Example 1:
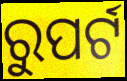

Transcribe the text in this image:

ରୁପର୍ଟ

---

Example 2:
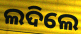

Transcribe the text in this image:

ଲଦିଲେ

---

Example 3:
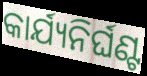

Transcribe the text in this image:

କାର୍ଯ୍ୟନିର୍ଘଣ୍ଟ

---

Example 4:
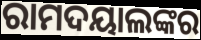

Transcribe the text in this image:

ରାମଦୟାଲଙ୍କର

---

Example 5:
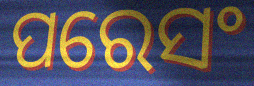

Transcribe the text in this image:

ପରେସଂ